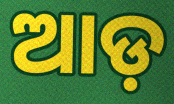
ଆଡ଼